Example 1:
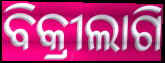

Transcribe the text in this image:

ବିକ୍ରୀଲାଗି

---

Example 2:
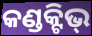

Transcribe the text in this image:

କଣ୍ଡକ୍ଟିଭ୍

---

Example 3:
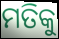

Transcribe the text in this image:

ମତିକୁ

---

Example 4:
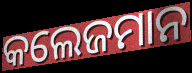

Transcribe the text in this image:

କଲେଜମାନ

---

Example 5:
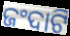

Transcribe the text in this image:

ଜଂଦାଟି